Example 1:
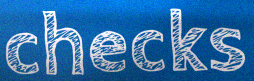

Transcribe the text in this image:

checks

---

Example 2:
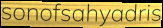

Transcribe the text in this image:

sonofsahyadris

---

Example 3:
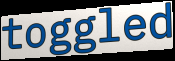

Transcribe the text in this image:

toggled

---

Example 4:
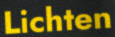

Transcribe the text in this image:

Lichten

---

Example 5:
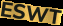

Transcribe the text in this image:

ESWT